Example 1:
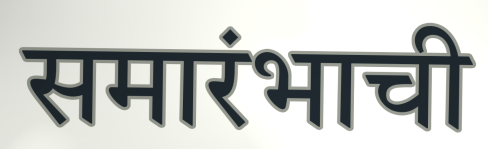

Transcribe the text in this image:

समारंभाची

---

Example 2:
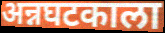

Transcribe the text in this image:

अन्नघटकाला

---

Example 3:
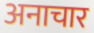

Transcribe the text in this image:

अनाचार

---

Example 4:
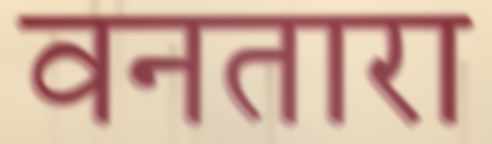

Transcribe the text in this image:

वनतारा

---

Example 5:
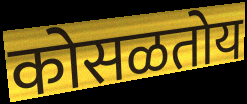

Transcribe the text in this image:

कोसळतोय